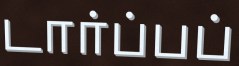
டார்ப்பப்